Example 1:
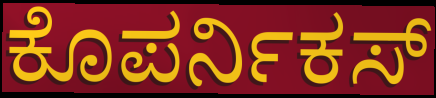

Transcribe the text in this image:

ಕೊಪರ್ನಿಕಸ್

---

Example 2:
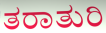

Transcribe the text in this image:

ತರಾತುರಿ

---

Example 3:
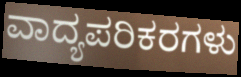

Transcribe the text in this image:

ವಾದ್ಯಪರಿಕರಗಳು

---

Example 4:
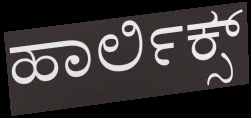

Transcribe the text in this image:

ಹಾರ್ಲಿಕ್ಸ್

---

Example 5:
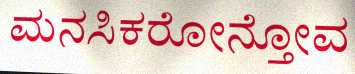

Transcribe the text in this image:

ಮನಸಿಕರೋನ್ತೋವ